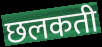
छलकती